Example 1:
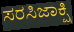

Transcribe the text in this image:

ಸರಸಿಜಾಕ್ಷಿ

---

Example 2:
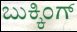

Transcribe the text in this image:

ಬುಕ್ಕಿಂಗ್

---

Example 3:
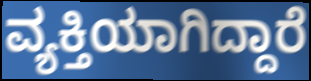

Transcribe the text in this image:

ವ್ಯಕ್ತಿಯಾಗಿದ್ದಾರೆ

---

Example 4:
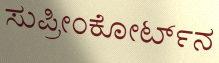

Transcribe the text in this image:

ಸುಪ್ರೀಂಕೋರ್ಟ್‌ನ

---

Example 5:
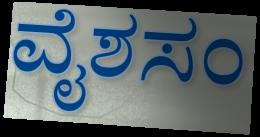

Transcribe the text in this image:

ವೈಶಸಂ